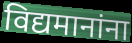
विद्यमानांना